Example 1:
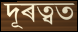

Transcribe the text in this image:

দূৰত্বত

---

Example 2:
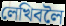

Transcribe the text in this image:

লেখিবলৈ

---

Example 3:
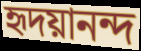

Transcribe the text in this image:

হৃদয়ানন্দ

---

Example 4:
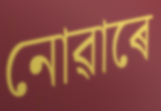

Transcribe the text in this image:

নোৱাৰে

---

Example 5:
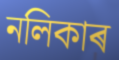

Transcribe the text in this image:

নলিকাৰ